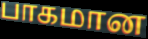
பாகமான